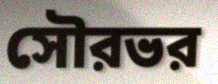
সৌরভর